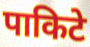
पाकिटे